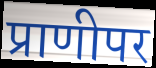
प्राणीपर